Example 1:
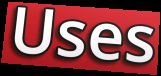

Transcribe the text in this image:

Uses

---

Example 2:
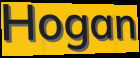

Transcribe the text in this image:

Hogan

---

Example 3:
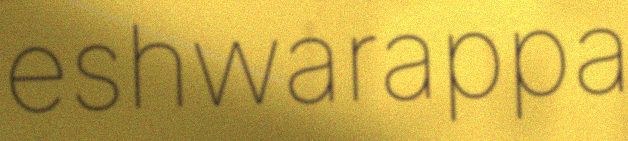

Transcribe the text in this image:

eshwarappa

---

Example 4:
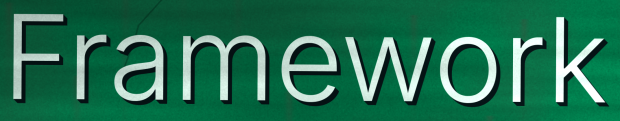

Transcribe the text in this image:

Framework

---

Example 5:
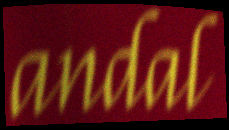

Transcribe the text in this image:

andal